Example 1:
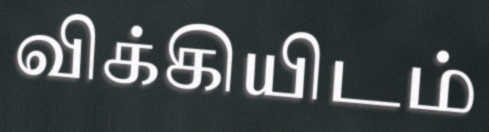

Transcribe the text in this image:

விக்கியிடம்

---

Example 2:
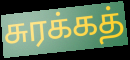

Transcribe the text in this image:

சுரக்கத்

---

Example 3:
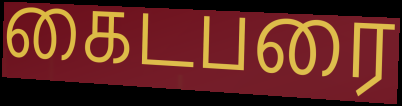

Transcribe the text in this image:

கைடபரை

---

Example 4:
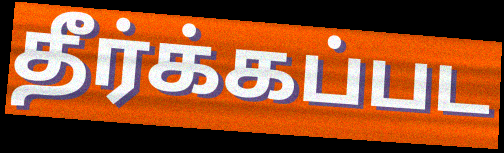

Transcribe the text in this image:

தீர்க்கப்பட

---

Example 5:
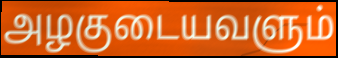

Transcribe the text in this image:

அழகுடையவளும்